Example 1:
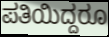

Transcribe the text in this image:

ಪತಿಯಿದ್ದರೂ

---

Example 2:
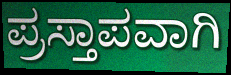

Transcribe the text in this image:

ಪ್ರಸ್ತಾಪವಾಗಿ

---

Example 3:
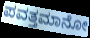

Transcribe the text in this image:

ಪವತ್ತಮಾನೋ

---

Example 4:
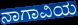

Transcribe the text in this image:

ನಾಗಾವಿಯ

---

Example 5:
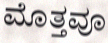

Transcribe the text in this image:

ಮೊತ್ತವೂ